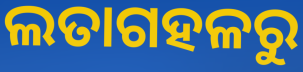
ଲତାଗହଳରୁ